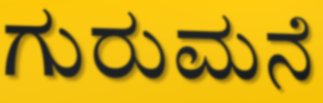
ಗುರುಮನೆ